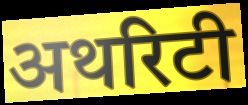
अथरिटी